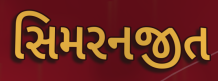
સિમરનજીત